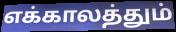
எக்காலத்தும்